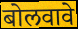
बोलवावे